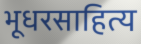
भूधरसाहित्य